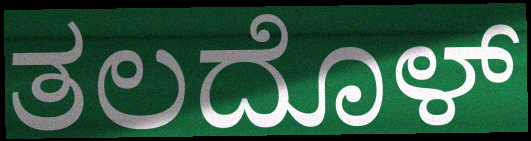
ತಲದೊಳ್